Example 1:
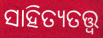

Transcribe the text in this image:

ସାହିତ୍ୟତତ୍ତ୍ୱ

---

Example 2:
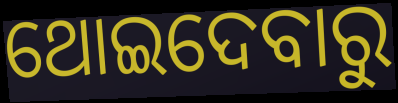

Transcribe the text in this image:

ଥୋଇଦେବାରୁ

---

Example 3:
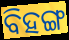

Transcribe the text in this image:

ବିହଙ୍ଗ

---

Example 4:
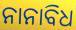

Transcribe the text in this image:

ନାନାବିଧ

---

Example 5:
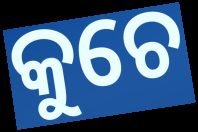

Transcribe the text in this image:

କୁଚେ